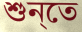
শুন্‌তে